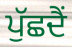
ਪੁੱਛਦੈਂ